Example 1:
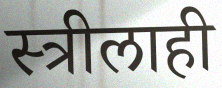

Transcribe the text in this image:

स्त्रीलाही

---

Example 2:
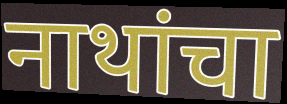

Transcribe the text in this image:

नाथांचा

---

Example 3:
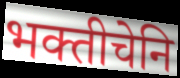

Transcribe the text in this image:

भक्तीचेनि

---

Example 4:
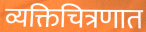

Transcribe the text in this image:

व्यक्तिचित्रणात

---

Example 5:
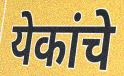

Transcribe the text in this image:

येकांचे